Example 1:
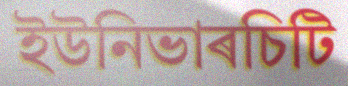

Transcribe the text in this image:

ইউনিভাৰচিটি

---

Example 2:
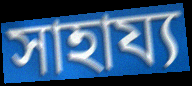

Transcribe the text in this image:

সাহায্য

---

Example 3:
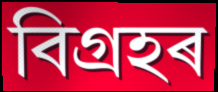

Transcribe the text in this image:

বিগ্ৰহৰ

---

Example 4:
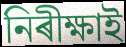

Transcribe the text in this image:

নিৰীক্ষাই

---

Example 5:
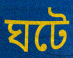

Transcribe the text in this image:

ঘটে